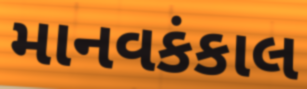
માનવકંકાલ